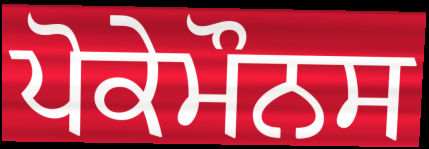
ਪੋਕੇਮੌਨਸ